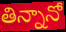
తిన్నానో